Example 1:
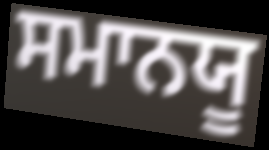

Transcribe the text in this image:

ਸਮਾਨਯੂ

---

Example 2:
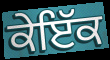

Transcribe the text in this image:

ਕੇਇੱਕ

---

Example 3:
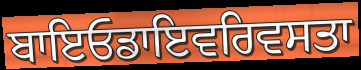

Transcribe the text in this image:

ਬਾਇਓਡਾਇਵਰਿਵਸਤਾ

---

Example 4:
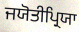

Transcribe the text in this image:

ਜਯੋਤੀਪ੍ਰਿਯਾ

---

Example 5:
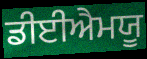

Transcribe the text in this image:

ਡੀਈਐਮਯੂ